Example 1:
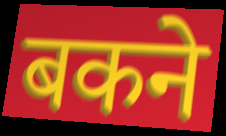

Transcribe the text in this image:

बकने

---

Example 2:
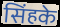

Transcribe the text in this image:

सिंहके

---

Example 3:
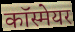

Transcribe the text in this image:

कॉस्मेयर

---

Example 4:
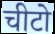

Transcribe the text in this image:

चीटो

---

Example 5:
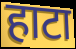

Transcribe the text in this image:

हाटा